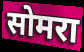
सोमरा